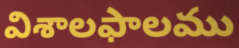
విశాలఫాలము